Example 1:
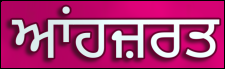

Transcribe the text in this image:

ਆਂਹਜ਼ਰਤ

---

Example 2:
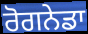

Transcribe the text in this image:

ਰੋਗਨੇਡਾ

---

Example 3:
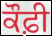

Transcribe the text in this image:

ਕੌਫ਼ੀ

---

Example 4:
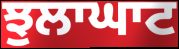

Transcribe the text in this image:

ਝੁਲਾਘਾਟ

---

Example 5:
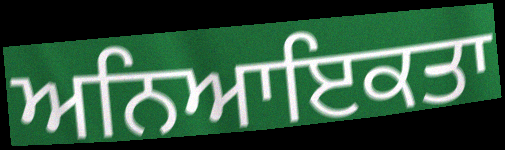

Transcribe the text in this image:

ਅਨਿਆਇਕਤਾ